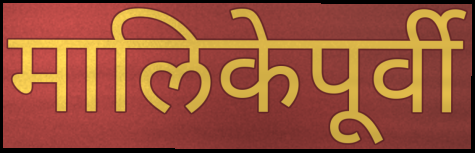
मालिकेपूर्वी